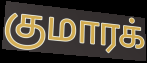
குமாரக்